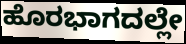
ಹೊರಭಾಗದಲ್ಲೇ